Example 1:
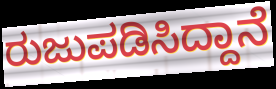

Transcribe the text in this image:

ರುಜುಪಡಿಸಿದ್ದಾನೆ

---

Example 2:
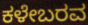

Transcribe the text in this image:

ಕಳೇಬರವ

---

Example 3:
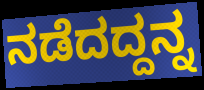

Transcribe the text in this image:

ನಡೆದದ್ದನ್ನ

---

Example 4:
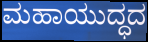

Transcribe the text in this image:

ಮಹಾಯುದ್ಧದ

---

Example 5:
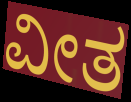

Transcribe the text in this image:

ವೀತ